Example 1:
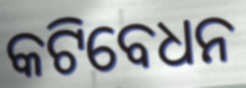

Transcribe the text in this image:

କଟିବେଧନ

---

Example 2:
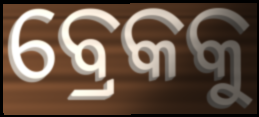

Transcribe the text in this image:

ବ୍ରେକକୁ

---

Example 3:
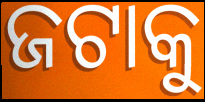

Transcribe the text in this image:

ଜଟାକୁ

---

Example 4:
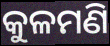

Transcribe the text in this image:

କୁଳମଣି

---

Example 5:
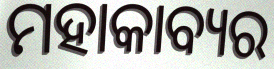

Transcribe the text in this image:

ମହାକାବ୍ୟର